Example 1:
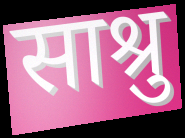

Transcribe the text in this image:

साश्रु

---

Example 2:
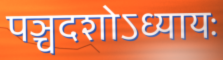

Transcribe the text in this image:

पञ्चदशोऽध्यायः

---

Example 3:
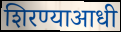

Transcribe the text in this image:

शिरण्याआधी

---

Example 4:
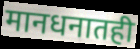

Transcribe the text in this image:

मानधनातही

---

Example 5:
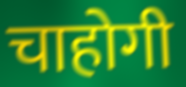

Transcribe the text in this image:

चाहोगी